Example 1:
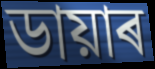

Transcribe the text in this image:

ডায়াৰ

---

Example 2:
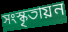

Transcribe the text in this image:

সংস্কৃতায়ন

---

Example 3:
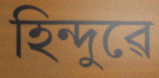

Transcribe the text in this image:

হিন্দুৱে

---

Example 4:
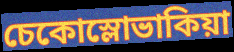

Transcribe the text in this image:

চেকোস্লোভাকিয়া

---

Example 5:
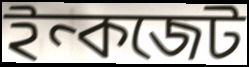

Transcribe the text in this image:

ইন্কজেট